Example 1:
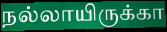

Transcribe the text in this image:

நல்லாயிருக்கா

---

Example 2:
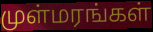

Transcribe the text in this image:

முள்மரங்கள்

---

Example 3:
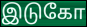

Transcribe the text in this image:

இடுகோ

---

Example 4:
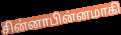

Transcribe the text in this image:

சின்னாபின்னமாகி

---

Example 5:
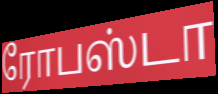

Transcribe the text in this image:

ரோபஸ்டா